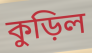
কুড়িল